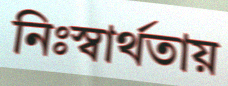
নিঃস্বার্থতায়